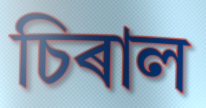
চিৰাল